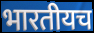
भारतीयच